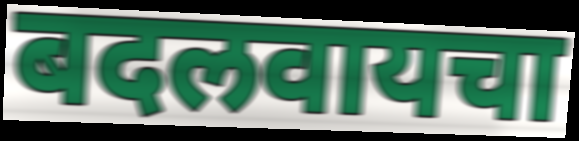
बदलवायचा